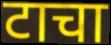
टाचा